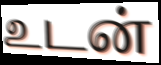
உடன்